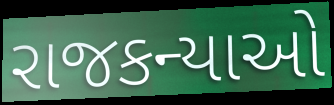
રાજકન્યાઓ